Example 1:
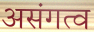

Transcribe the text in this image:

असंगत्व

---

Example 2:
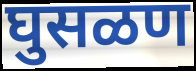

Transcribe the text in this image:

घुसळण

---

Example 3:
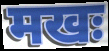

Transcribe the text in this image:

मखः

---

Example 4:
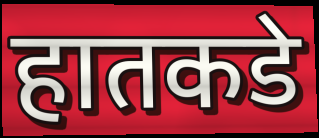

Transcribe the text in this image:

हातकडे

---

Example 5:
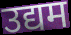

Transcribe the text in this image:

उद्यम